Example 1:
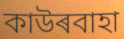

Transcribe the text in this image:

কাউৰবাহা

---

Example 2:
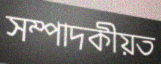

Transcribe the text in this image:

সম্পাদকীয়ত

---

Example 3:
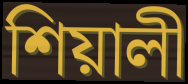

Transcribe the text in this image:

শিয়ালী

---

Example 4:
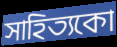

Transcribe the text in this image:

সাহিত্যকো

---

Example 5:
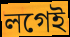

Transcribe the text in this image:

লগেই